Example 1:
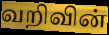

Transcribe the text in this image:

வறிவின்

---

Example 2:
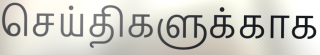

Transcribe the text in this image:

செய்திகளுக்காக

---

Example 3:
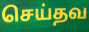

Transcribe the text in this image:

செய்தவ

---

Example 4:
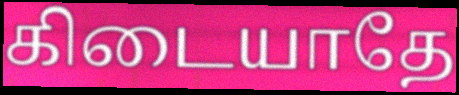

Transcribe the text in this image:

கிடையாதே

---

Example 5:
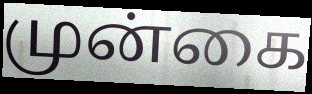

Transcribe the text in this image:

முன்கை